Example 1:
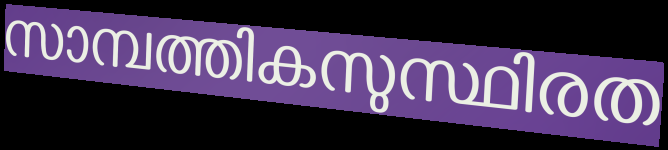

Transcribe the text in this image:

സാമ്പത്തികസുസ്ഥിരത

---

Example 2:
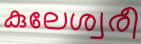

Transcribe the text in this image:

കുലേശ്വരീ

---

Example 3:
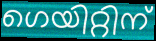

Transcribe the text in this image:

ഗെയിറ്റിന്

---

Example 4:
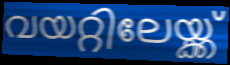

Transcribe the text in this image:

വയറ്റിലേയ്ക്ക്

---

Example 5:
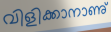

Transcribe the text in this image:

വിളിക്കാനാണു്